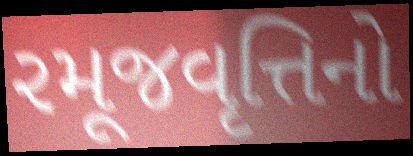
રમૂજવૃત્તિનો